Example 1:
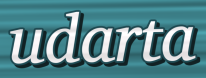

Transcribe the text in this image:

udarta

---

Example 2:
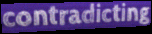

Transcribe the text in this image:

contradicting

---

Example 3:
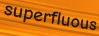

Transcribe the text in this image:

superfluous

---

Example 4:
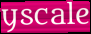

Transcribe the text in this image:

yscale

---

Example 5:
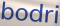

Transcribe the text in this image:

bodri